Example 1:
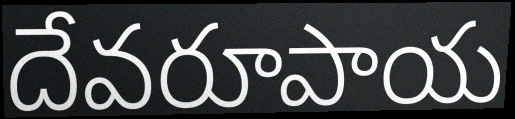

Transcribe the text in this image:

దేవరూపాయ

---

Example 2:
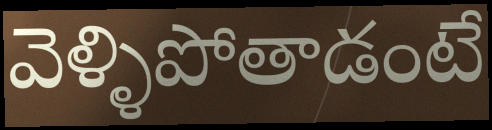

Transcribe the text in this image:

వెళ్ళిపోతాడంటే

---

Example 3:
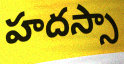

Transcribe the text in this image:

హదస్సా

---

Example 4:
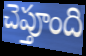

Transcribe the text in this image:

చెప్తూంది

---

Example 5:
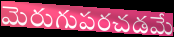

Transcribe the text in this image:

మెరుగుపరచడమే